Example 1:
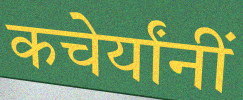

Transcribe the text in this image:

कचेर्यांनीं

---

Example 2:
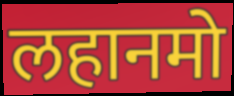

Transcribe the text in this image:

लहानमो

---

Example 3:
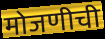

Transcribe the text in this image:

मोजणीची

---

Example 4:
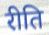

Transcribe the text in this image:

रीति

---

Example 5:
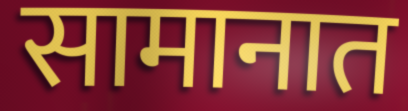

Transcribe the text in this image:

सामानात